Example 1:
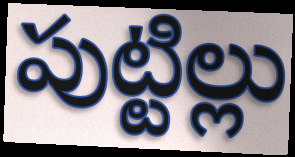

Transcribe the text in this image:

పుట్టిల్లు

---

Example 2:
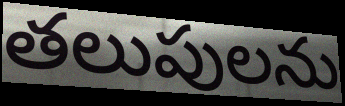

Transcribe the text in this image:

తలుపులను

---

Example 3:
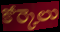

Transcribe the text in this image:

కోర్కెలు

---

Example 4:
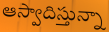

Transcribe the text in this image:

ఆస్వాదిస్తున్నా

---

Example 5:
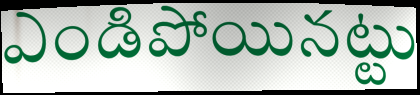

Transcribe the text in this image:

ఎండిపోయినట్టు